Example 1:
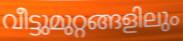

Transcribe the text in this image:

വീട്ടുമുറ്റങ്ങളിലും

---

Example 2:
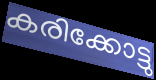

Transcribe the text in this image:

കരിക്കോട്ടു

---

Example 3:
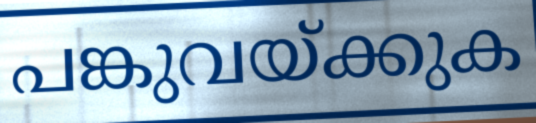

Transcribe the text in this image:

പങ്കുവയ്ക്കുക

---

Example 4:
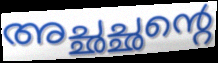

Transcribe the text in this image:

അച്ഛച്ഛന്റെ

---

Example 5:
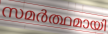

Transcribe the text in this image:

സമർത്ഥമായി